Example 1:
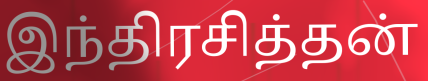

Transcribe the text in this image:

இந்திரசித்தன்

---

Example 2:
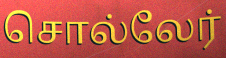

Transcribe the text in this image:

சொல்லேர்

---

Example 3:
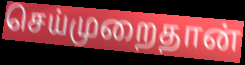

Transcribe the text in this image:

செய்முறைதான்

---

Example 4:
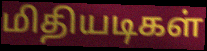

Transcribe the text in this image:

மிதியடிகள்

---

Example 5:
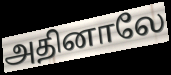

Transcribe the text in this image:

அதினாலே